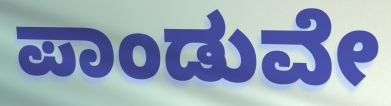
ಪಾಂಡುವೇ